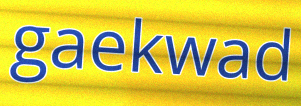
gaekwad